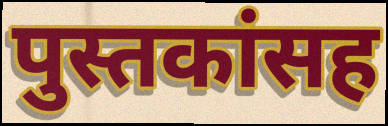
पुस्तकांसह